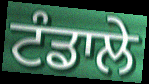
ਟੰਡਾਲੇ